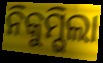
ନିକୁମ୍ଭିଲା